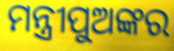
ମନ୍ତ୍ରୀପୁଅଙ୍କର